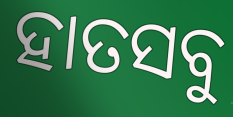
ହାତସବୁ